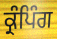
ਕ੍ਰੰਪਿੰਗ